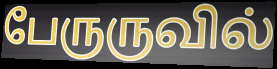
பேருருவில்